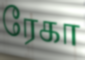
ரேகா